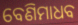
ବେଣିମାଧବ